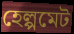
হেল্পমেট